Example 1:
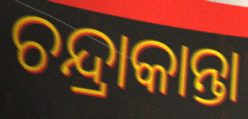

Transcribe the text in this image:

ଚନ୍ଦ୍ରାକାନ୍ତା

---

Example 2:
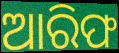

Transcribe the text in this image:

ଆରିଫ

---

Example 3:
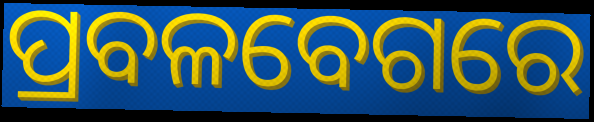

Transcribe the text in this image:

ପ୍ରବଳବେଗରେ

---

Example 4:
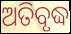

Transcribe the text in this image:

ଅତିବୃଦ୍ଧ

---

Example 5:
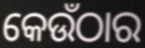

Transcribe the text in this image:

କେଉଁଠାର